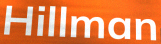
Hillman